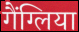
गैंग्लिया